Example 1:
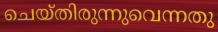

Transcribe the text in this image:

ചെയ്തിരുന്നുവെന്നതു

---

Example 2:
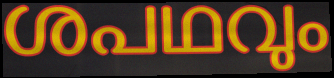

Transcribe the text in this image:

ശപഥവും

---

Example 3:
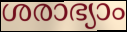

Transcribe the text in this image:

ശരാഭ്യാം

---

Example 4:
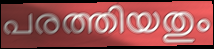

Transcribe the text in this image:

പരത്തിയതും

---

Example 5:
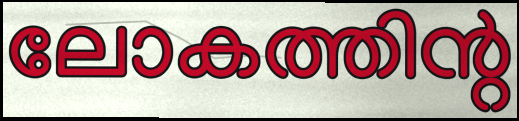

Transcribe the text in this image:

ലോകത്തിന്റ